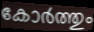
കോർത്തും